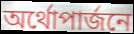
অর্থোপার্জনে